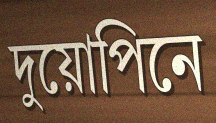
দুয়োপিনে